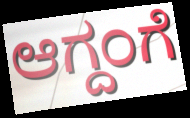
ಆಗ್ದಂಗೆ